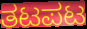
ತಟಪಟ